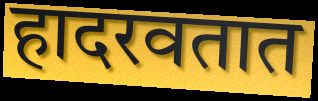
हादरवतात